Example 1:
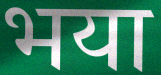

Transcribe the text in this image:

भया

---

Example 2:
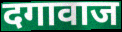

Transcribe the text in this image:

दगावाज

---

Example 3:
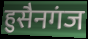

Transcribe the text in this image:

हुसैनगंज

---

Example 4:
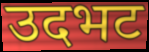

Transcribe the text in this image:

उदभट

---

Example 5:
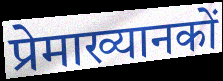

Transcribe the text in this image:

प्रेमाख्यानकों